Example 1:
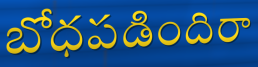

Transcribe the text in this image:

బోధపడిందిరా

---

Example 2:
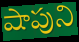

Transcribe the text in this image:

షాపుని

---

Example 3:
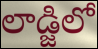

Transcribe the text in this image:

లాడ్జిలో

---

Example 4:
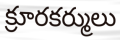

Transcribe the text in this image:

క్రూరకర్ములు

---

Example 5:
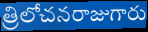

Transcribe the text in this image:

త్రిలోచనరాజుగారు